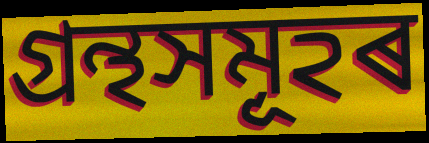
গ্ৰন্থসমূহৰ